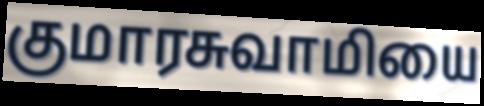
குமாரசுவாமியை